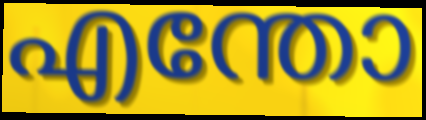
എന്തോ